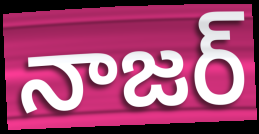
నాజర్